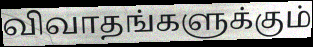
விவாதங்களுக்கும்